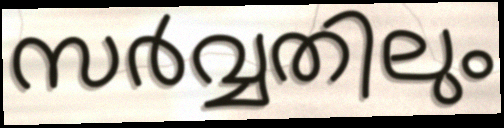
സർവ്വതിലും